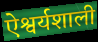
ऐश्वर्यशाली